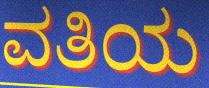
ವತಿಯ